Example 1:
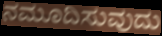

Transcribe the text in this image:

ನಮೂದಿಸುವುದು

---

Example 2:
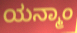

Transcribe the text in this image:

ಯನ್ಮಾಂ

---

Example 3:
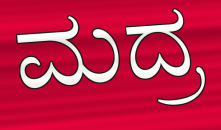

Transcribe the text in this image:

ಮದ್ರ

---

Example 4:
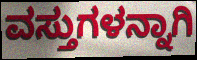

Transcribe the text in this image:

ವಸ್ತುಗಳನ್ನಾಗಿ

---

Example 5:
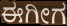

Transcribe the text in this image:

ಈಗೀಗ